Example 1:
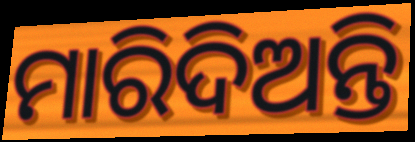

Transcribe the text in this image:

ମାରିଦିଅନ୍ତି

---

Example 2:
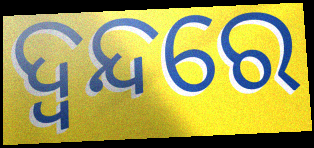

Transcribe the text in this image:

ଦ୍ଵନ୍ଦରେ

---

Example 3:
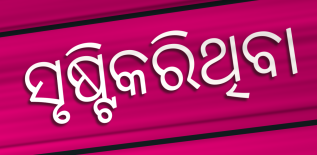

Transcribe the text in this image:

ସୃଷ୍ଟିକରିଥିବା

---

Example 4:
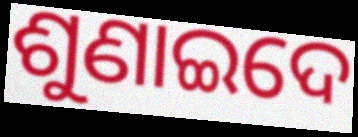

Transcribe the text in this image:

ଶୁଣାଇଦେ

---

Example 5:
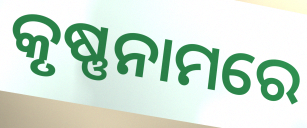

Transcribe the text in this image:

କୃଷ୍ଣନାମରେ